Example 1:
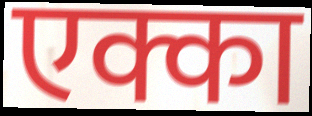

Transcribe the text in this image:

एक्का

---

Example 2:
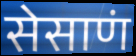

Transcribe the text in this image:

सेसाणं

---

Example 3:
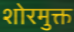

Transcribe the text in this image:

शोरमुक्त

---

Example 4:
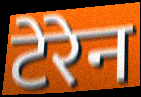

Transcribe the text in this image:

टेरेन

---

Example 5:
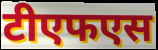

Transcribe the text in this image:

टीएफएस